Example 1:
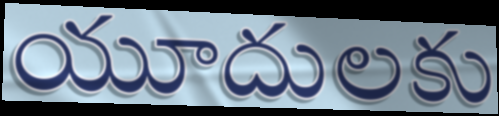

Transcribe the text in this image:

యూదులకు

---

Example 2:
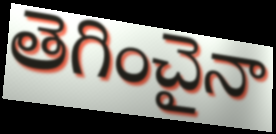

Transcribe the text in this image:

తెగించైనా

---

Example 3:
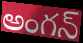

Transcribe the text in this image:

అంగన్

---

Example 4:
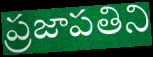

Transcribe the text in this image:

ప్రజాపతిని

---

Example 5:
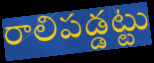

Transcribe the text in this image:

రాలిపడ్డట్టు